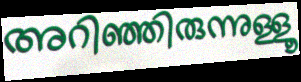
അറിഞ്ഞിരുന്നുള്ളൂ